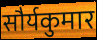
सौर्यकुमार